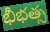
భీభత్స